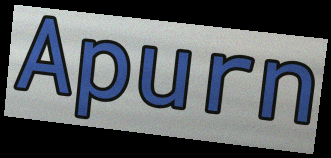
Apurn